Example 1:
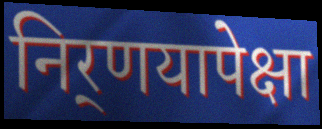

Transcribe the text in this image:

निर्णयापेक्षा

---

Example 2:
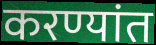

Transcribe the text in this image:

करण्यांत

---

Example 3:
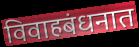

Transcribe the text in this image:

विवाहबंधनात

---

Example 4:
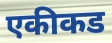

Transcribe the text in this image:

एकीकड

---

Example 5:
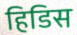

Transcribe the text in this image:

हिडिस